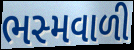
ભસ્મવાળી